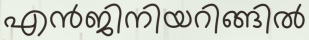
എൻജിനിയറിങ്ങിൽ